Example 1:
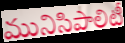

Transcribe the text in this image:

మునిసిపాలిటీ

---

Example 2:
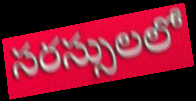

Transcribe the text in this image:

సరస్సులలో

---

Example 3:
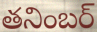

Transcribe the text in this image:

తనింబర్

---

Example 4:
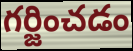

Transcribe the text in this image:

గర్జించడం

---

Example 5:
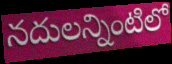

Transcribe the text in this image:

నదులన్నింటిలో